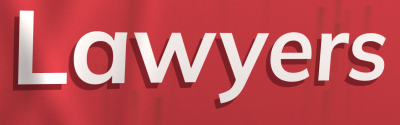
Lawyers